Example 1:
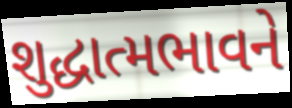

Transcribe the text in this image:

શુદ્ધાત્મભાવને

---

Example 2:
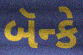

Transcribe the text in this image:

બૅન્કે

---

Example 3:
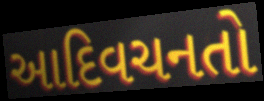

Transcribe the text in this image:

આદિવચનતો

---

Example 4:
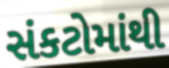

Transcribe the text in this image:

સંકટોમાંથી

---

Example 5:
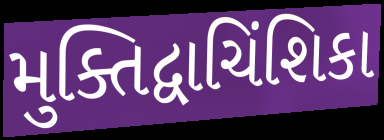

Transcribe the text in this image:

મુક્તિદ્વાચિંશિકા